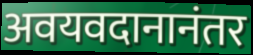
अवयवदानानंतर